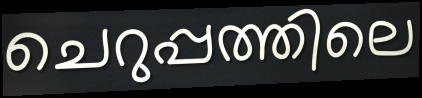
ചെറുപ്പത്തിലെ